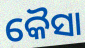
କୈସା